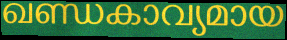
ഖണ്ഡകാവ്യമായ